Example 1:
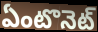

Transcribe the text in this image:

ఏంటొనెట్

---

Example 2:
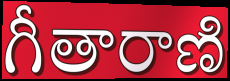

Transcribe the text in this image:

గీతారాణి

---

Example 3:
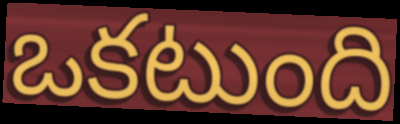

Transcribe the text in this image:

ఒకటుంది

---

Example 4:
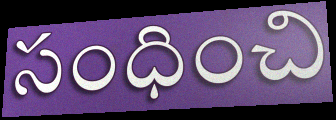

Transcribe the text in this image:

సంధించి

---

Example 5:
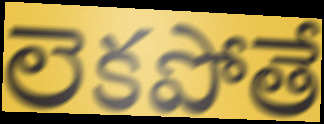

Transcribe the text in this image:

లెకపోతే